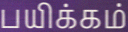
பயிக்கம்